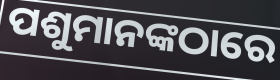
ପଶୁମାନଙ୍କଠାରେ